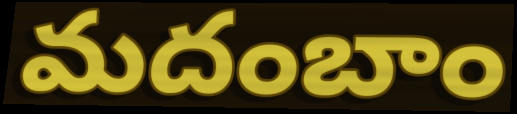
మదంబాం